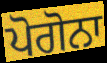
ਪੋਗੋਨਾ